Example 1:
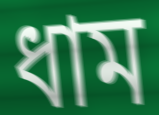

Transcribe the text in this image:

ধাম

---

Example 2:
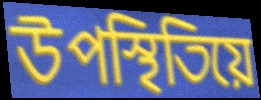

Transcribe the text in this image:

উপস্থিতিয়ে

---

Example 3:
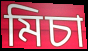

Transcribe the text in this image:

মিচা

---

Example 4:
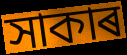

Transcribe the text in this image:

সাকাৰ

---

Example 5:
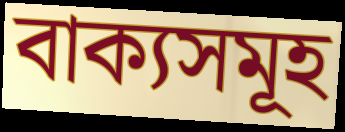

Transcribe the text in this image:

বাক্যসমূহ